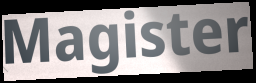
Magister